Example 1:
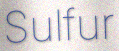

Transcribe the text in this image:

Sulfur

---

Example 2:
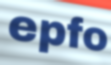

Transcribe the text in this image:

epfo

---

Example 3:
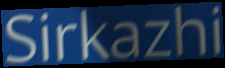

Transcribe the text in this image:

Sirkazhi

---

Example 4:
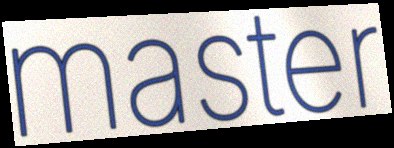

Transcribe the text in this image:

master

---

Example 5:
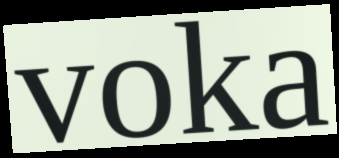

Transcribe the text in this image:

voka